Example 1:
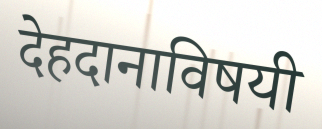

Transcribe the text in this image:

देहदानाविषयी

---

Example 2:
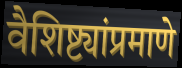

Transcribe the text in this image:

वैशिष्ट्यांप्रमाणे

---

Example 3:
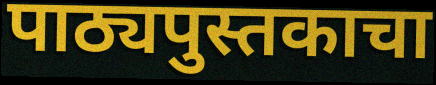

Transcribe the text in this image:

पाठ्यपुस्तकाचा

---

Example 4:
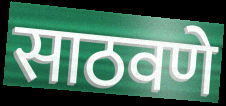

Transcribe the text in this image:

साठवणे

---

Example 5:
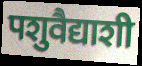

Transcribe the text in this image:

पशुवैद्याशी